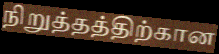
நிறுத்தத்திற்கான